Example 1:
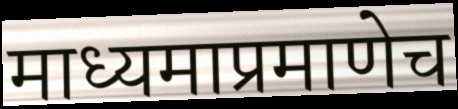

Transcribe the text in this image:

माध्यमाप्रमाणेच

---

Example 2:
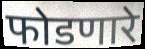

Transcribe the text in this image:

फोडणारे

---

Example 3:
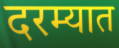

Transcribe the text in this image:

दरम्यात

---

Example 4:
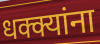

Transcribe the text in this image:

धक्क्यांना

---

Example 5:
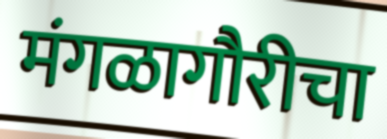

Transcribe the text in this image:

मंगळागौरीचा